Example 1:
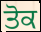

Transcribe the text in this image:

ਤੋਕ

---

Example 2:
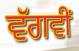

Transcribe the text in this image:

ਵੱਗਵੀਂ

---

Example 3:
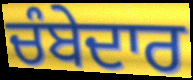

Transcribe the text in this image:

ਚੰਬੇਦਾਰ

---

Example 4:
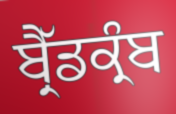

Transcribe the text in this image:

ਬ੍ਰੈੱਡਕ੍ਰੰਬ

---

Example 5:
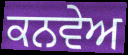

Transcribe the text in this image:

ਕਨਵੇਅ